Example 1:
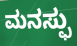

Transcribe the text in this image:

ಮನಸ್ಫು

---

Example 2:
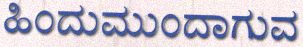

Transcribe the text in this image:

ಹಿಂದುಮುಂದಾಗುವ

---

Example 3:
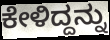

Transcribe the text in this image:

ಕೇಳಿದ್ದನ್ನು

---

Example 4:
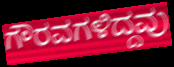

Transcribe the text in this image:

ಗೌರವಗಳಿದ್ದವು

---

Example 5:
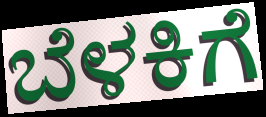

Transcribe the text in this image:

ಬೆಳಕಿಗೆ